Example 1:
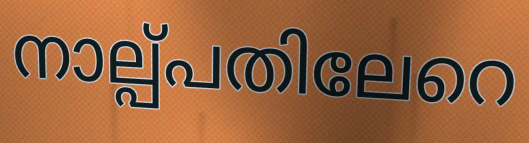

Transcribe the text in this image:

നാല്പ്പതിലേറെ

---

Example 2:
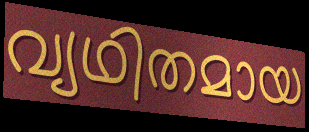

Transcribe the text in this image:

വ്യഥിതമായ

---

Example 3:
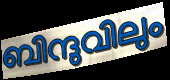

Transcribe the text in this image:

ബിന്ദുവിലും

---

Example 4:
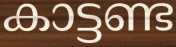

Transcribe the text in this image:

കാട്ടണ്ട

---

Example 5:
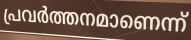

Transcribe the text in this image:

പ്രവർത്തനമാണെന്ന്